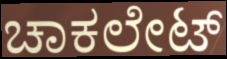
ಚಾಕಲೇಟ್